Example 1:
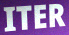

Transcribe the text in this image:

ITER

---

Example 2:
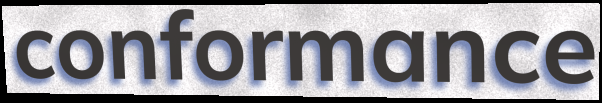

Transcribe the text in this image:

conformance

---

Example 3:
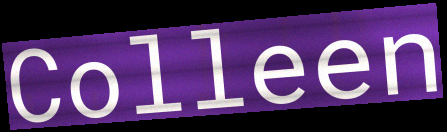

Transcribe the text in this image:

Colleen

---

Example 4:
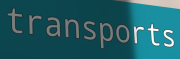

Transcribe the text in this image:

transports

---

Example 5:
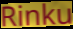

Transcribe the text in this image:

Rinku